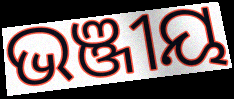
ଭଞ୍ଜୀୟ